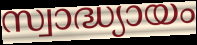
സ്വാദ്ധ്യായം